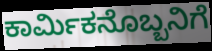
ಕಾರ್ಮಿಕನೊಬ್ಬನಿಗೆ